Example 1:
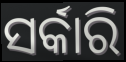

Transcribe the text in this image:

ସର୍କାରି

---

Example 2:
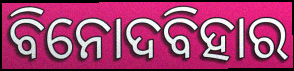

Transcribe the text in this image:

ବିନୋଦବିହାର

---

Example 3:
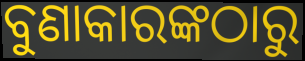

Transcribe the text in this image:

ବୁଣାକାରଙ୍କଠାରୁ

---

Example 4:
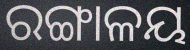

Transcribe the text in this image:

ରଙ୍ଗାଳୟ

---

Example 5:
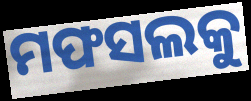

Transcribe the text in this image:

ମଫସଲକୁ